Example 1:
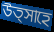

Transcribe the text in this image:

উত্সাহে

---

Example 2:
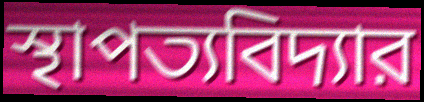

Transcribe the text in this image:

স্থাপত্যবিদ্যার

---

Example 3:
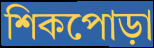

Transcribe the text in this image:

শিকপোড়া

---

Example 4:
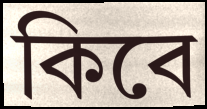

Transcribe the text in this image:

কিবে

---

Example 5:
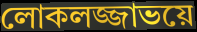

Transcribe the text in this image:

লোকলজ্জাভয়ে